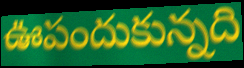
ఊపందుకున్నది